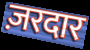
ज़रदार